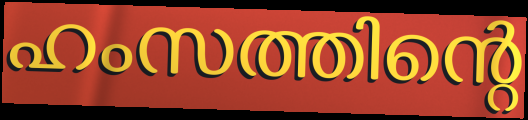
ഹംസത്തിന്റെ